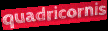
quadricornis